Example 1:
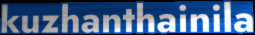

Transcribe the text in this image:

kuzhanthainila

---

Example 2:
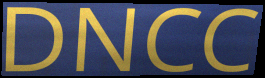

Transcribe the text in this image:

DNCC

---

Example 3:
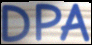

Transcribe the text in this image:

DPA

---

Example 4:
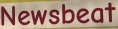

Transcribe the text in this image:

Newsbeat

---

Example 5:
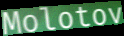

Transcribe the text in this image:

Molotov